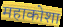
महाकोशा